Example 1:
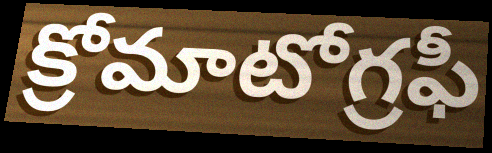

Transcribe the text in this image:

క్రోమాటోగ్రఫీ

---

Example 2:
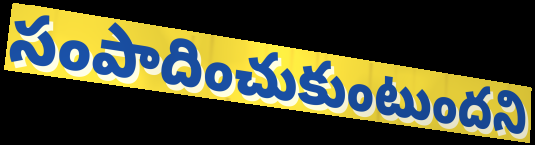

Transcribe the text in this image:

సంపాదించుకుంటుందని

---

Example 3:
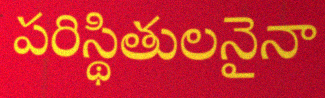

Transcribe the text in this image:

పరిస్థితులనైనా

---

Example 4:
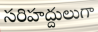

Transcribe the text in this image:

సరిహద్దులుగా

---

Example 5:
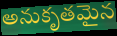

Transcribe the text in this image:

అనుకృతమైన